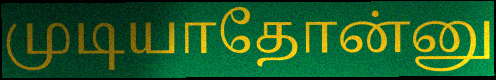
முடியாதோன்னு